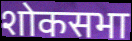
शोकसभा